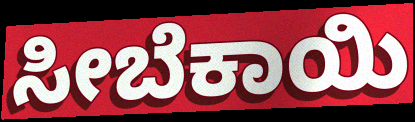
ಸೀಬೆಕಾಯಿ